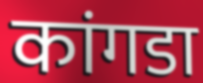
कांगडा